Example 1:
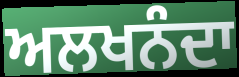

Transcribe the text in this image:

ਅਲਖਨੰਦਾ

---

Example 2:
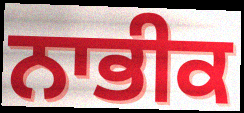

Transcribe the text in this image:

ਨਾਭੀਕ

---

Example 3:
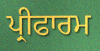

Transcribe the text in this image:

ਪ੍ਰੀਫਾਰਮ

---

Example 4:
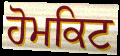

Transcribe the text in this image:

ਹੋਮਕਿਟ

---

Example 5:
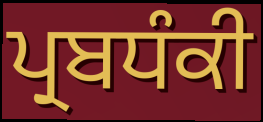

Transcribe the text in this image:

ਪ੍ਰਬਧੰਕੀ